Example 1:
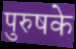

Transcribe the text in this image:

पुरुषके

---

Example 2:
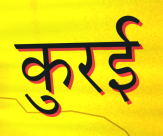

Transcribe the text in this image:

कुरई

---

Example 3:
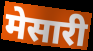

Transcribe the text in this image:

मेसारी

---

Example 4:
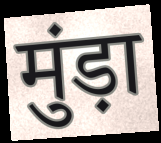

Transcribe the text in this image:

मुंड़ा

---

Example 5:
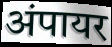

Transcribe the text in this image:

अंपायर